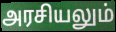
அரசியலும்